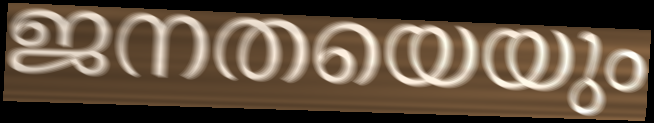
ജനതയെയും